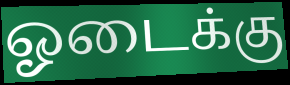
ஓடைக்கு